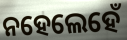
ନହେଲେହେଁ